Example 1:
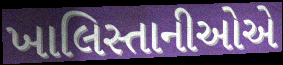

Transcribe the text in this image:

ખાલિસ્તાનીઓએ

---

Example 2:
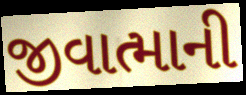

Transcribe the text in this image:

જીવાત્માની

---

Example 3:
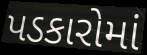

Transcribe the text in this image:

પડકારોમાં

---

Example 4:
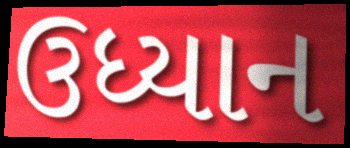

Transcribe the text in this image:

ઉધ્યાન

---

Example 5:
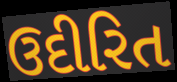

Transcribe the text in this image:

ઉદીરિત